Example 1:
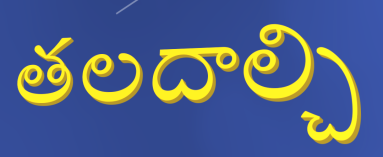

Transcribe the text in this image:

తలదాల్చి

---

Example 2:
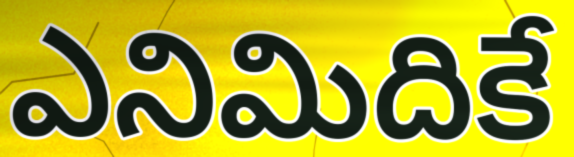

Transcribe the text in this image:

ఎనిమిదికే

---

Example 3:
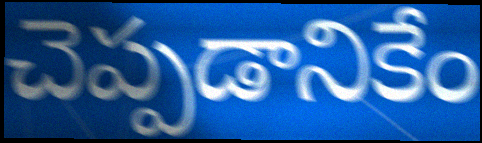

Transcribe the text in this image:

చెప్పడానికేం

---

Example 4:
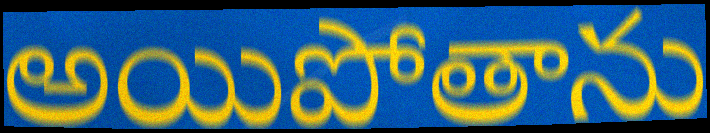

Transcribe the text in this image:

అయిపోతాను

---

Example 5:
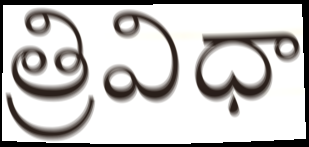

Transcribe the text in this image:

త్రివిధా